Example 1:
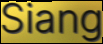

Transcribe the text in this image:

Siang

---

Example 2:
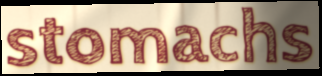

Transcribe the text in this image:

stomachs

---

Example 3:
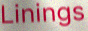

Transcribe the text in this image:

Linings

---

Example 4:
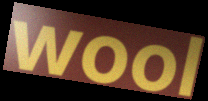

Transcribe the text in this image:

wool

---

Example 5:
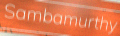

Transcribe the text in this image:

Sambamurthy